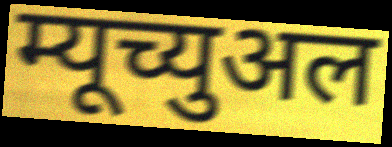
म्यूच्युअल